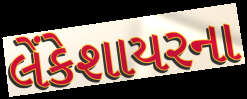
લેંકેશાયરના